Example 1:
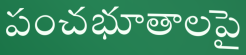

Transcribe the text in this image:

పంచభూతాలపై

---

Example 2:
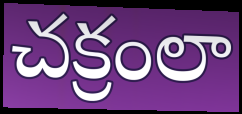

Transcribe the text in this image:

చక్రంలా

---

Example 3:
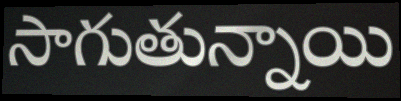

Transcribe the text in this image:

సాగుతున్నాయి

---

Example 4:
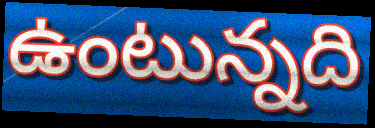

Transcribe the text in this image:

ఉంటున్నది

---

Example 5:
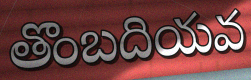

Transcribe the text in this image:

తొంబదియవ